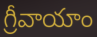
గ్రీవాయాం